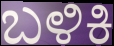
ಬಳಿಕಿ